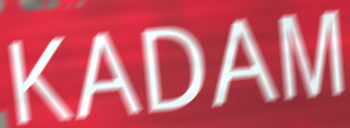
KADAM